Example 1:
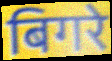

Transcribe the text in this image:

बिगरे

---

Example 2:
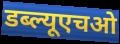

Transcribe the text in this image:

डब्ल्यूएचओ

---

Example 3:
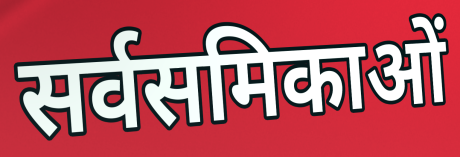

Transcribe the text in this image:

सर्वसमिकाओं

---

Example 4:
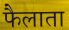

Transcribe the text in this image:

फैलाता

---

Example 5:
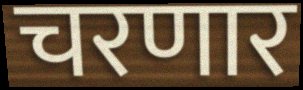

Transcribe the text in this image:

चरणार